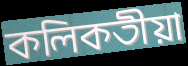
কলিকতীয়া